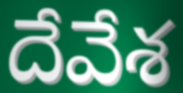
దేవేశ